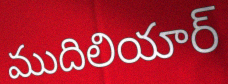
ముదిలియార్